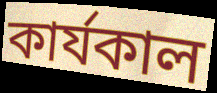
কাৰ্যকাল